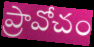
ప్రావోచం